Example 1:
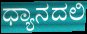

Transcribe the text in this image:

ಧ್ಯಾನದಲಿ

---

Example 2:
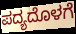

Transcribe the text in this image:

ಪದ್ಯದೊಳಗೆ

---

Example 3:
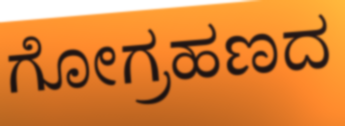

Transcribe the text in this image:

ಗೋಗ್ರಹಣದ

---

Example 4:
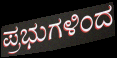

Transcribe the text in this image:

ಪ್ರಭುಗಳಿಂದ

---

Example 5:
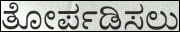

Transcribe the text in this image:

ತೋರ್ಪಡಿಸಲು